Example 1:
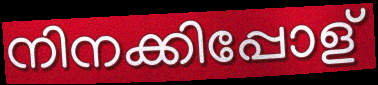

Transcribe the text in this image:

നിനക്കിപ്പോള്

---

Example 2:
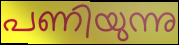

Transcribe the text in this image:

പണിയുന്നു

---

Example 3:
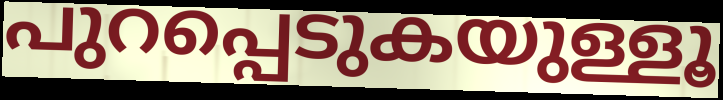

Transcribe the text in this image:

പുറപ്പെടുകയുള്ളൂ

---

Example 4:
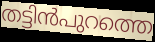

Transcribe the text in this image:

തട്ടിൻപുറത്തെ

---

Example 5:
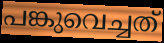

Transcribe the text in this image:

പങ്കുവെച്ചത്